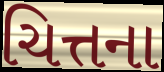
ચિત્તના